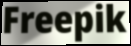
Freepik